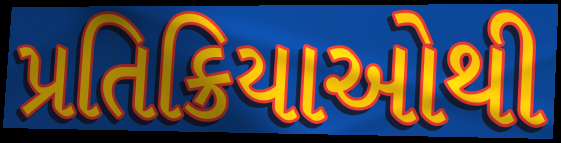
પ્રતિક્રિયાઓથી